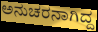
ಅನುಚರನಾಗಿದ್ದ